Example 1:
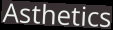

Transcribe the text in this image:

Asthetics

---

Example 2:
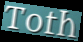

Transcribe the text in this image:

Toth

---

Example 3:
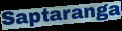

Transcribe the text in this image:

Saptaranga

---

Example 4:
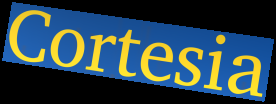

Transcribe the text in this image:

Cortesia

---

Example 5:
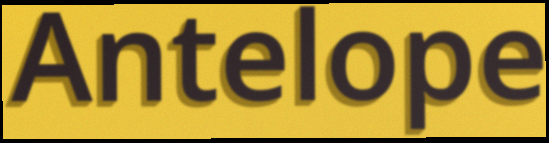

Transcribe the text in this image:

Antelope